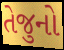
તેજુનો